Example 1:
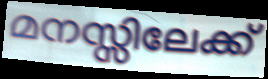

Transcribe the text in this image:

മനസ്സിലേക്ക്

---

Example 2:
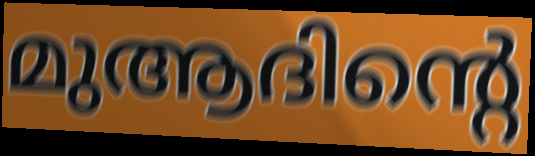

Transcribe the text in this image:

മുആദിന്റെ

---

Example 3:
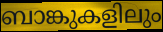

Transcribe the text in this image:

ബാങ്കുകളിലും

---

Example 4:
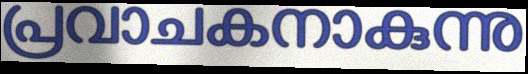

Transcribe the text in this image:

പ്രവാചകനാകുന്നു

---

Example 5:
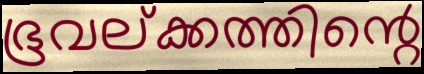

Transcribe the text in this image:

ഭൂവല്ക്കത്തിന്റെ